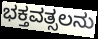
ಭಕ್ತವತ್ಸಲನು